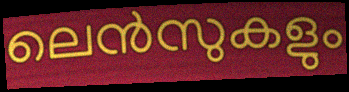
ലെൻസുകളും